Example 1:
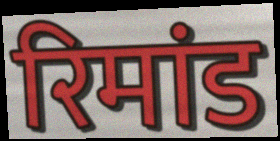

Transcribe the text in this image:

रिमांड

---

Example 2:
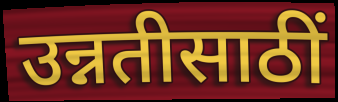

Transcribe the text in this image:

उन्नतीसाठीं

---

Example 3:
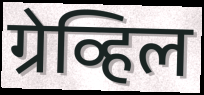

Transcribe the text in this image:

ग्रेव्हिल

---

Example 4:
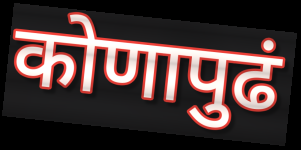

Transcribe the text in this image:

कोणापुढं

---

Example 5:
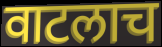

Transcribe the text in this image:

वाटलाच